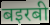
बइरबी